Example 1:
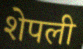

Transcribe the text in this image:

शेपली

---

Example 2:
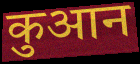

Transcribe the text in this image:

कुआन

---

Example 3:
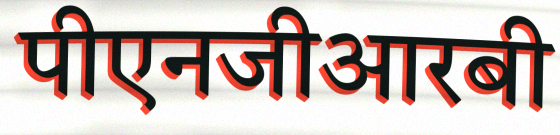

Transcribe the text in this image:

पीएनजीआरबी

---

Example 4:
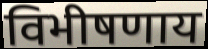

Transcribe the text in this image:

विभीषणाय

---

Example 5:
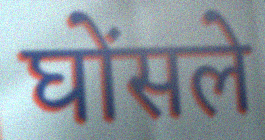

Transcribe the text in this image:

घोंसले